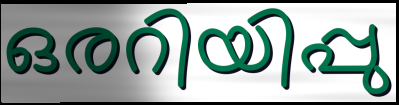
ഒരറിയിപ്പു